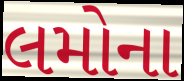
લમોના